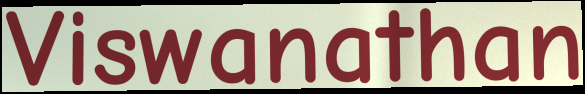
Viswanathan